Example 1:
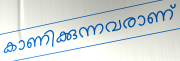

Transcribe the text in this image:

കാണിക്കുന്നവരാണ്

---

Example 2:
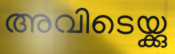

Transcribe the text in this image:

അവിടെയ്ക്കു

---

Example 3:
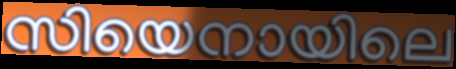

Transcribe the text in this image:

സിയെനായിലെ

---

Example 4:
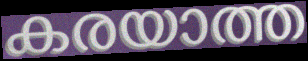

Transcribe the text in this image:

കരയാത്ത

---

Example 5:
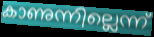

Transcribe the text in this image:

കാണുന്നില്ലെന്ന്